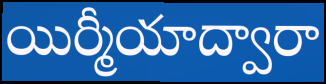
యిర్మీయాద్వారా